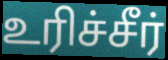
உரிச்சீர்